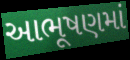
આભૂષણમાં